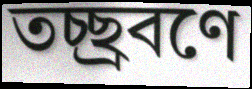
তচ্ছ্রবণে